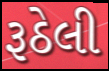
રૂઠેલી